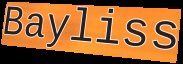
Bayliss